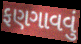
ફણગાવવું